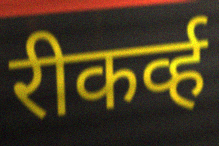
रीकर्व्ह